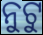
ନୁଟୁ